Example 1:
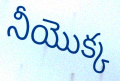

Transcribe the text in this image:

నీయొక్క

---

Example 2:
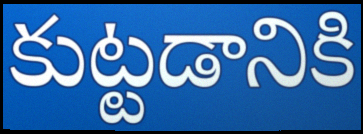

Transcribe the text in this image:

కుట్టడానికి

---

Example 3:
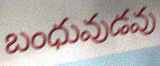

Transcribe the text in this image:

బంధువుడవు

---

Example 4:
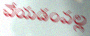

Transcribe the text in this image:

చేయడంవల్ల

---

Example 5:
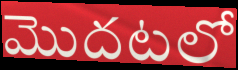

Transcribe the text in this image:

మొదటలో